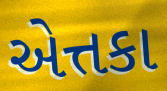
એત્તકા